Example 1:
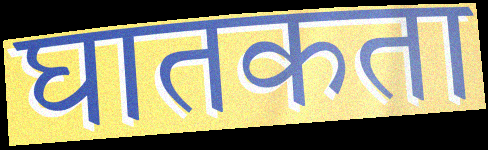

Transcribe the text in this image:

घातकता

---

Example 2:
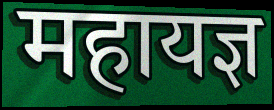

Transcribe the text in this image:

महायज्ञ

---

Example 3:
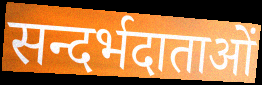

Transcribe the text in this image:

सन्दर्भदाताओं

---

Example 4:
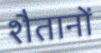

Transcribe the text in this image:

शैतानों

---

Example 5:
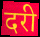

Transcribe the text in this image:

दरी